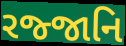
રજ્જાનિ